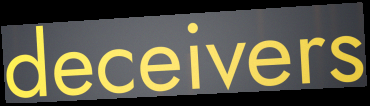
deceivers